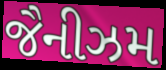
જૈનીઝમ